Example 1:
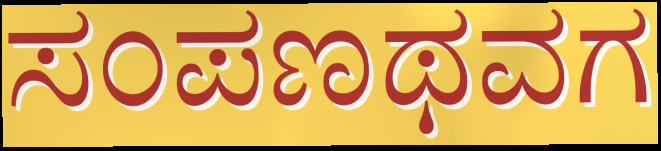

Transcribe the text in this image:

ಸಂಪಣಥವಗ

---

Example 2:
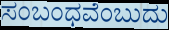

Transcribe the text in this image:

ಸಂಬಂಧವೆಂಬುದು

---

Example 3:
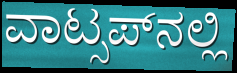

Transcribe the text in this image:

ವಾಟ್ಸಪ್‍ನಲ್ಲಿ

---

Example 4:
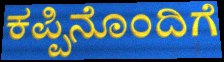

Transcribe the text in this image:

ಕಪ್ಪಿನೊಂದಿಗೆ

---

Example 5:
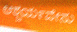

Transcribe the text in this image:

ಆಶ್ಚರ್ಯವೇನು